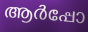
ആർപ്പോ